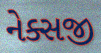
નેક્સજી